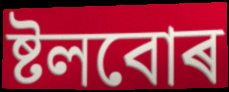
ষ্টলবোৰ